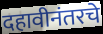
दहावीनंतरचे